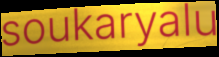
soukaryalu